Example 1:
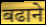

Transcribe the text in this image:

बढाने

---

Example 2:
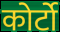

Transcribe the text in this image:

कोर्टो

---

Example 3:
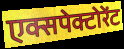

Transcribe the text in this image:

एक्सपेक्टोरेंट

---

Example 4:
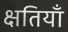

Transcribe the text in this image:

क्षतियाँ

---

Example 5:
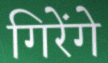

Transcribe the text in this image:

गिरेंगे